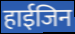
हाईजिन